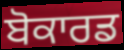
ਬੋਕਾਰਡ